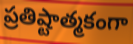
ప్రతిష్టాత్మకంగా